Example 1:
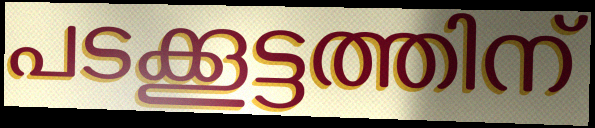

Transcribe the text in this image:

പടക്കൂട്ടത്തിന്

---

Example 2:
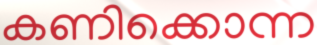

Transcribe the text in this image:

കണിക്കൊന്ന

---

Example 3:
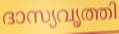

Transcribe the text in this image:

ദാസ്യവൃത്തി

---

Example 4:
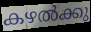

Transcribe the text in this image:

കഴൽക്കു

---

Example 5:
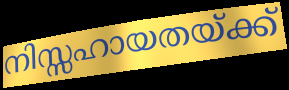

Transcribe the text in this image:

നിസ്സഹായതയ്ക്ക്